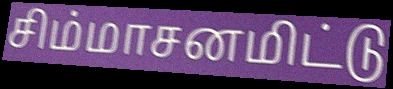
சிம்மாசனமிட்டு